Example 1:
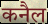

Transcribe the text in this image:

कनैल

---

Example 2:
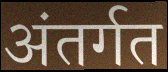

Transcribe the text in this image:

अंतर्गत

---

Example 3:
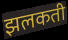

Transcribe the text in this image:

झलकती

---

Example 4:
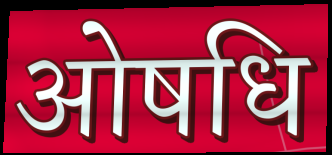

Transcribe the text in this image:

ओषधि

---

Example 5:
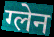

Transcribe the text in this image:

ग्लेन